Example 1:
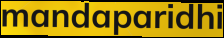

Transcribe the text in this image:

mandaparidhi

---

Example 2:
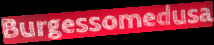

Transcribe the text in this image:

Burgessomedusa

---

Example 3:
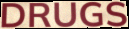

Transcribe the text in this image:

DRUGS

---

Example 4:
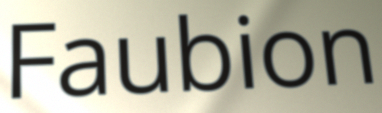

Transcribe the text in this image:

Faubion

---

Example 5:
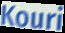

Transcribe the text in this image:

Kouri